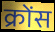
क्रोंस